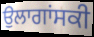
ਉਲਾਗਾਂਸਕੀ